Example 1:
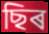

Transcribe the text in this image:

ছিৰ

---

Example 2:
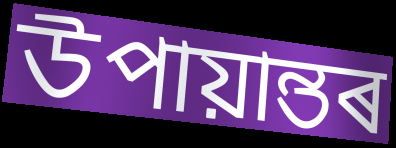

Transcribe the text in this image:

উপায়ান্তৰ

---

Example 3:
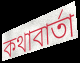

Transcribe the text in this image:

কথাবাৰ্তা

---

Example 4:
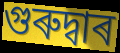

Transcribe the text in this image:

গুৰুদ্বাৰ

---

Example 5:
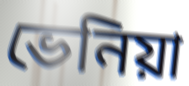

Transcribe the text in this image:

ভেনিয়া